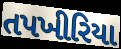
તપખીરિયા